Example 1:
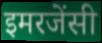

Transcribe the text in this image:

इमरजेंसी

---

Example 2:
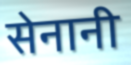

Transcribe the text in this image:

सेनानी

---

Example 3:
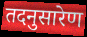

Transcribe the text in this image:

तदनुसारेण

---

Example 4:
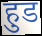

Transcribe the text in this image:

हुड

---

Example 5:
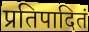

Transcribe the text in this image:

प्रतिपादितं